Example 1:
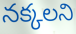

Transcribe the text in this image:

నక్కలని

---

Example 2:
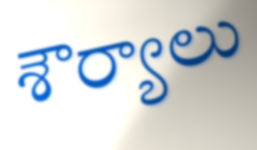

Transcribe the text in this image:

శౌర్యాలు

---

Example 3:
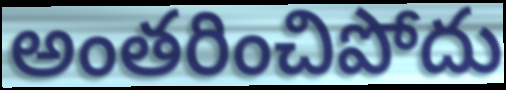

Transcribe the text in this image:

అంతరించిపోదు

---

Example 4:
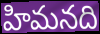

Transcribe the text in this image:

హిమనది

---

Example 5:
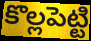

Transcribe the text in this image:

కొల్లపెట్టి